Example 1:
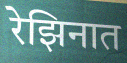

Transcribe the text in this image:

रेझिनात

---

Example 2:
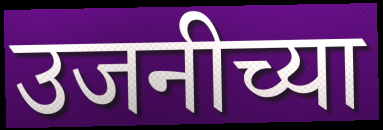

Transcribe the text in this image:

उजनीच्या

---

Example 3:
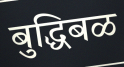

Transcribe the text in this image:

बुद्धिबळ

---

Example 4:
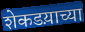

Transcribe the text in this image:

शेकडय़ाच्या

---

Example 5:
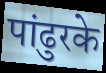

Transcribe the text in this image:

पांढुरके